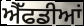
ਐੱਫਡੀਆਂ